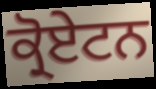
ਕ੍ਰੋਏਟਨ